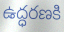
ఉద్ధరణకి